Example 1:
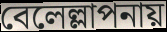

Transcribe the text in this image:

বেলেল্লাপনায়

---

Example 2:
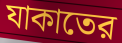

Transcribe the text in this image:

যাকাতের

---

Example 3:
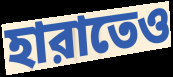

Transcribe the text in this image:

হারাতেও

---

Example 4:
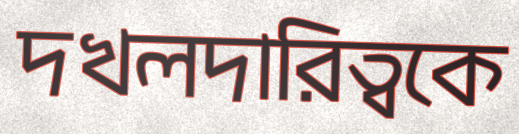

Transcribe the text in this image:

দখলদারিত্বকে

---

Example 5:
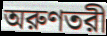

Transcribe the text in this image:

অরুণতরী